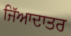
ਜਿੱਆਦਾਤਰ